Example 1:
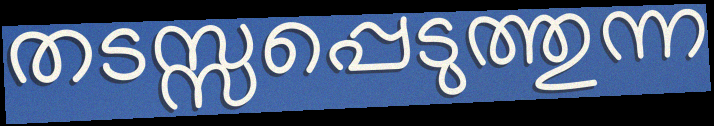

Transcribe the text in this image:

തടസ്സപ്പെടുത്തുന്ന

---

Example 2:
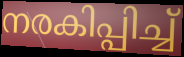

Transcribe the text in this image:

നരകിപ്പിച്ച്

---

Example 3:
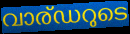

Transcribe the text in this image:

വാര്ഡറുടെ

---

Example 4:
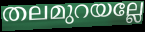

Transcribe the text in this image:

തലമുറയല്ലേ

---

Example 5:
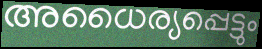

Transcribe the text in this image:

അധൈര്യപ്പെട്ടും